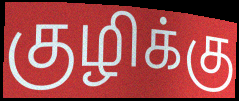
குழிக்கு